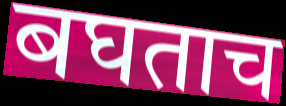
बघताच